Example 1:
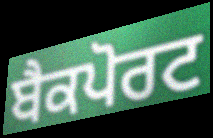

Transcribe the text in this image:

ਬੈਕਪੋਰਟ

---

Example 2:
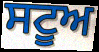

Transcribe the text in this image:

ਸਟੂਅ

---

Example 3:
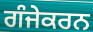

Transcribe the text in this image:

ਗੰਜੇਕਰਨ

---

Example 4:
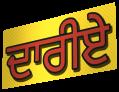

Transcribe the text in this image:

ਦਾਰੀਏ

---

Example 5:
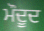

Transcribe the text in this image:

ਮੌਦੂਦ